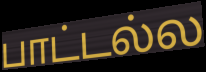
பாட்டல்ல